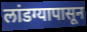
लांडग्यापासून